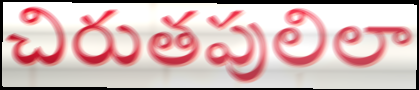
చిరుతపులిలా